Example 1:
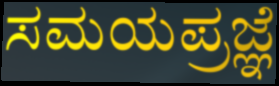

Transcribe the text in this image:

ಸಮಯಪ್ರಜ್ಞೆ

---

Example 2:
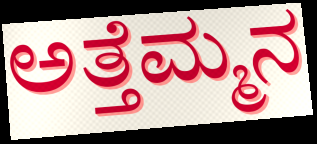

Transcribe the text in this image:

ಅತ್ತೆಮ್ಮನ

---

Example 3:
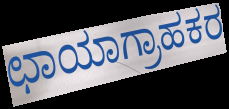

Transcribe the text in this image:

ಛಾಯಾಗ್ರಾಹಕರ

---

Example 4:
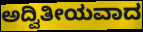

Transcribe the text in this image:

ಅದ್ವಿತೀಯವಾದ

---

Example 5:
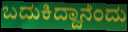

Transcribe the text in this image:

ಬದುಕಿದ್ದಾನೆಂದು